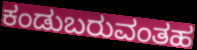
ಕಂಡುಬರುವಂತಹ